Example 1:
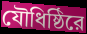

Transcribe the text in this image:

যৌধিষ্ঠিরে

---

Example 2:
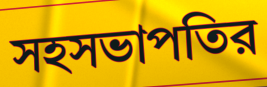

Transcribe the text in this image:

সহসভাপতির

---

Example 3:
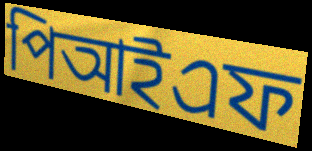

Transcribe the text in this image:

পিআইএফ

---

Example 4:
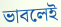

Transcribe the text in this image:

ভাবলেই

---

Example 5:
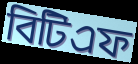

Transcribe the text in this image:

বিটিএফ